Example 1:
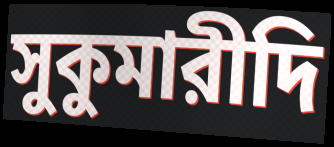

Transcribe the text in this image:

সুকুমারীদি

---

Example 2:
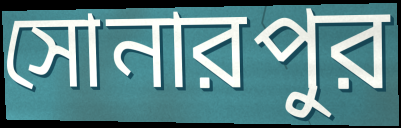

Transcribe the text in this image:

সোনারপুর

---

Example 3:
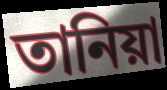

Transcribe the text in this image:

তানিয়া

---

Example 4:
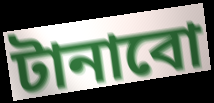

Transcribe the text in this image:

টানাবো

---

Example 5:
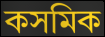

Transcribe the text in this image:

কসমিক